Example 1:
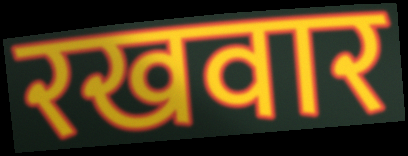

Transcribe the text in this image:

रखवार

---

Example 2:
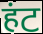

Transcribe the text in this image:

हंट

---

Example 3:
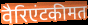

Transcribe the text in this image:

वैरिएंटकीमत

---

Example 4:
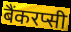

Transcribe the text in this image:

बैंकरप्सी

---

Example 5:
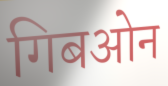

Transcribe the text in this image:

गिबओन